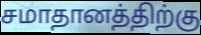
சமாதானத்திற்கு